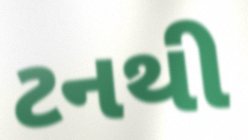
ટનથી